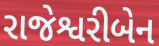
રાજેશ્વરીબેન